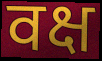
वक्ष